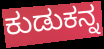
ಕುಡುಕನ್ನ